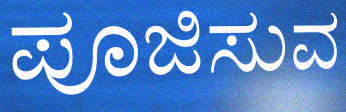
ಪೂಜಿಸುವ